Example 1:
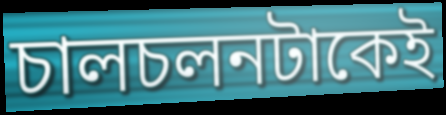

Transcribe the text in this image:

চালচলনটাকেই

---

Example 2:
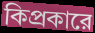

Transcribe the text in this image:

কিপ্রকারে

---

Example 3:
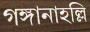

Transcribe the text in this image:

গঙ্গানাহল্লি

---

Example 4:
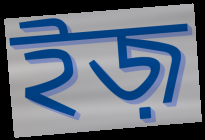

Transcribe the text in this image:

ইজ়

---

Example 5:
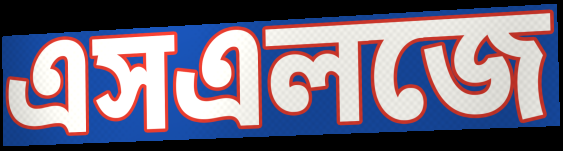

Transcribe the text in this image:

এসএলজে